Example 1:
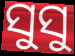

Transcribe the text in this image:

ସୁସୁ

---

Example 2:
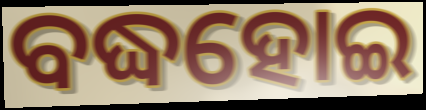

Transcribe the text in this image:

ବଦ୍ଧହୋଇ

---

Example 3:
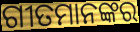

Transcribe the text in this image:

ଗୀତମାନଙ୍କର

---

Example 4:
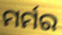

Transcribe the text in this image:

ମର୍ମର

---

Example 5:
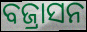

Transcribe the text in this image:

ବଜ୍ରାସନ